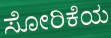
ಸೋರಿಕೆಯ